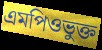
এমপিওভুক্ত